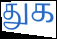
துக